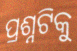
ପ୍ରଶ୍ନଟିକୁ